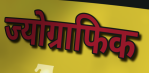
ज्योग्राफिक